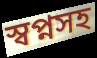
স্বপ্নসহ